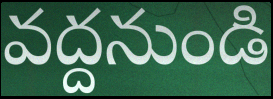
వద్దనుండి